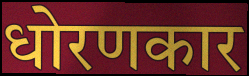
धोरणकार